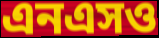
এনএসও